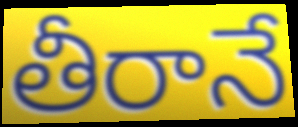
తీరానే